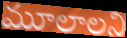
మూలాలని